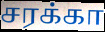
சரக்கா